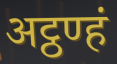
अट्ठण्हं